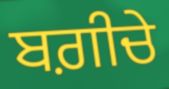
ਬਗ਼ੀਚੇ